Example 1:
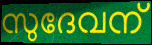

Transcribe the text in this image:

സുദേവന്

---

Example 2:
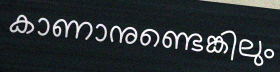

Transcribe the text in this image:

കാണാനുണ്ടെങ്കിലും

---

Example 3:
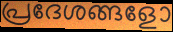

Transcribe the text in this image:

പ്രദേശങ്ങളോ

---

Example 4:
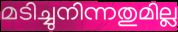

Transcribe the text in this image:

മടിച്ചുനിന്നതുമില്ല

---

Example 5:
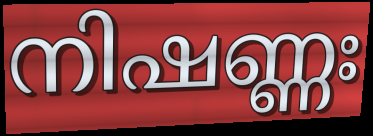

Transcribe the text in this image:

നിഷണ്ണഃ